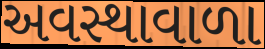
અવસ્થાવાળા